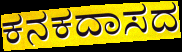
ಕನಕದಾಸದ